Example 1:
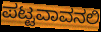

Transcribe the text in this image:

ಪಟ್ಟವಾವನಲಿ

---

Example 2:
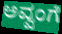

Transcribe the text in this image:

ಅವ್ವಂಗೆ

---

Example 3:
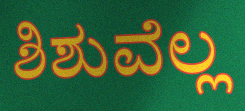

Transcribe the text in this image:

ಶಿಶುವೆಲ್ಲ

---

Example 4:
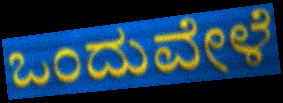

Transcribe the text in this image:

ಒಂದುವೇಳೆ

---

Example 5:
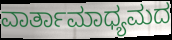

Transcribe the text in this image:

ವಾರ್ತಾಮಾಧ್ಯಮದ